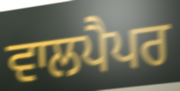
ਵਾਲਪੈਪਰ